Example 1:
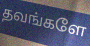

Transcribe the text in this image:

தவங்களே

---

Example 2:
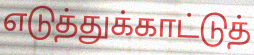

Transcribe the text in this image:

எடுத்துக்காட்டுத்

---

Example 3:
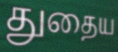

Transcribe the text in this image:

துதைய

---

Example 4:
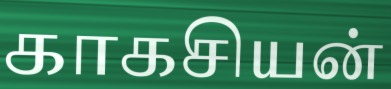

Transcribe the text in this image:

காகசியன்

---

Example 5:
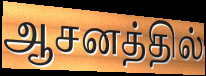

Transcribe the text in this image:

ஆசனத்தில்